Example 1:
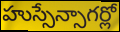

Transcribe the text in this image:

హుస్సేన్సాగర్లో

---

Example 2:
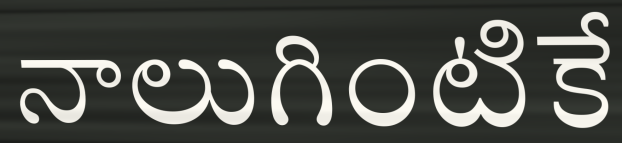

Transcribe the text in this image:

నాలుగింటికే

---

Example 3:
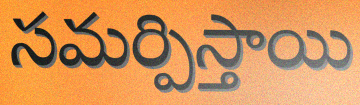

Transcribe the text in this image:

సమర్పిస్తాయి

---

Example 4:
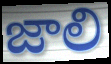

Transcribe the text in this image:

జాలి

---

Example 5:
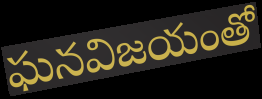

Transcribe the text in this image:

ఘనవిజయంతో